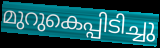
മുറുകെപ്പിടിച്ചു